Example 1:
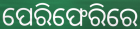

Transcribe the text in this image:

ପେରିଫେରିରେ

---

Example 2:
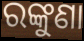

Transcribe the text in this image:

ରଙ୍କୁଣା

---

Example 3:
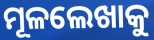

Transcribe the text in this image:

ମୂଳଲେଖାକୁ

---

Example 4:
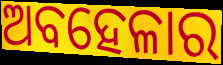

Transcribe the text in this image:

ଅବହେଳାର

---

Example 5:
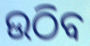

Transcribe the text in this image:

ଉଠିବ